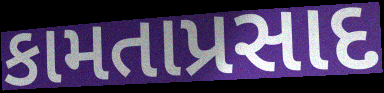
કામતાપ્રસાદ